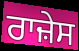
ਰਾਜ਼ੇਸ